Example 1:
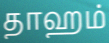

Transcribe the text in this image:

தாஹம்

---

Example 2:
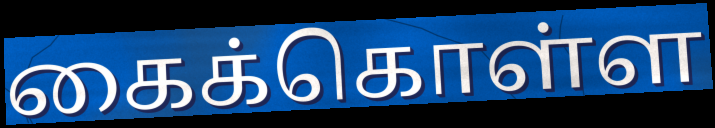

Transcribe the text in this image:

கைக்கொள்ள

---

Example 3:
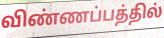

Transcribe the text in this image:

விண்ணப்பத்தில்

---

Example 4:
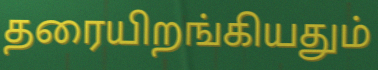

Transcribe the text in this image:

தரையிறங்கியதும்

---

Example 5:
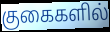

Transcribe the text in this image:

குகைகளில்